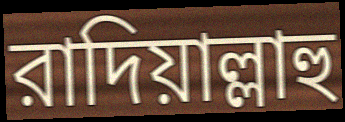
রাদিয়াল্লাহু